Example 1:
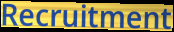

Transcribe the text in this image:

Recruitment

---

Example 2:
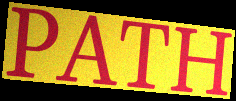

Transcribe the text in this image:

PATH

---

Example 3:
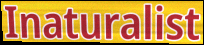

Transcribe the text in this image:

Inaturalist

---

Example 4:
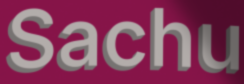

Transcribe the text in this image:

Sachu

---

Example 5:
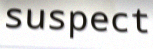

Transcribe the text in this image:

suspect